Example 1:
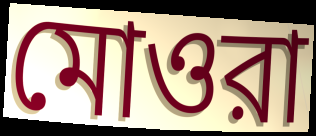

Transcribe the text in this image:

মোওরা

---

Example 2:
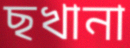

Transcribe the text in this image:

ছখানা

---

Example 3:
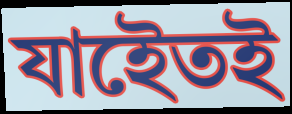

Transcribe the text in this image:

যাইেতই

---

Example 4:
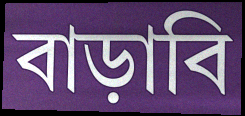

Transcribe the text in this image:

বাড়াবি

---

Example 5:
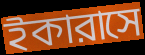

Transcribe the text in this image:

ইকারাসে